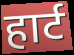
हार्ट